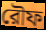
রৌফ